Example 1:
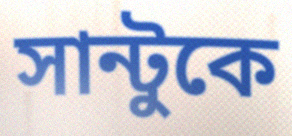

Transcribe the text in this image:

সান্টুকে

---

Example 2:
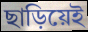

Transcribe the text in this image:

ছাড়িয়েই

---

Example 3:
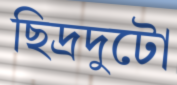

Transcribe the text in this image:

ছিদ্রদুটো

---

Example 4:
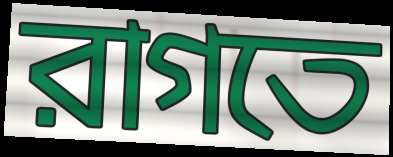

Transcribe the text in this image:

রাগতে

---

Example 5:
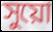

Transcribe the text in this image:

সুয়ো